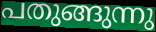
പതുങ്ങുന്നു